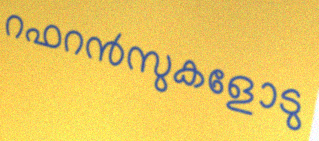
റഫറൻസുകളോടു